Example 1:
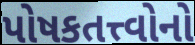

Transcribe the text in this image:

પોષકતત્ત્વોનો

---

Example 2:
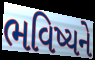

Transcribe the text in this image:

ભવિષ્યને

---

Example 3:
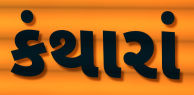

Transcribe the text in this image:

કંથારાં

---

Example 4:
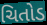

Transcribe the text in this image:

ચિતોડ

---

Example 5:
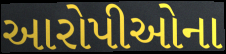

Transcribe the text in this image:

આરોપીઓના